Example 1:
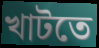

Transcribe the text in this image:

খাটতে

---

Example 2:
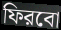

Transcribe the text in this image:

ফিরবো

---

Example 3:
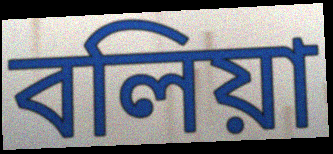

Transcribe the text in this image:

বলিয়া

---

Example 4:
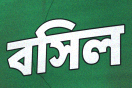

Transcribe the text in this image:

বসিল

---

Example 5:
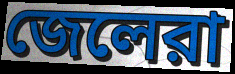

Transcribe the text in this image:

জেলেরা